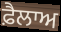
ਫ਼ੈਲਾਅ